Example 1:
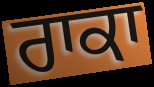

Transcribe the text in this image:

ਰਾਕਾ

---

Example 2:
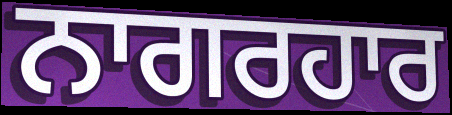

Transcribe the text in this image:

ਨਾਗਰਹਾਰ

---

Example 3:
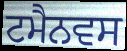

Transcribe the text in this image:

ਟਮੈਨਵਸ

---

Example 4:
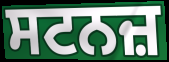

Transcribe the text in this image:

ਸਟਨਜ਼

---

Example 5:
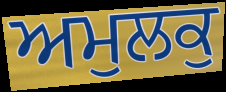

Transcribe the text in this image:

ਅਮੁਲਕੁ